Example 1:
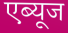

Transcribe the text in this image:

एब्यूज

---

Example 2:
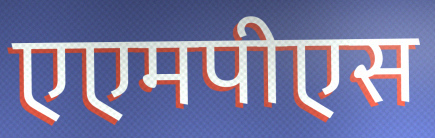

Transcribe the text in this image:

एएमपीएस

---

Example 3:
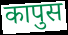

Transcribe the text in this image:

कापुस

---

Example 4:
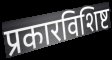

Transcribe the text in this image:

प्रकारविशिष्ट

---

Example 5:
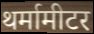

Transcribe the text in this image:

थर्मामीटर